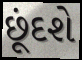
છૂંદશે